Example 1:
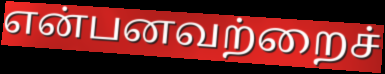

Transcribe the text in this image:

என்பனவற்றைச்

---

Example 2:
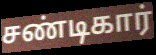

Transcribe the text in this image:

சண்டிகார்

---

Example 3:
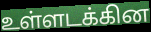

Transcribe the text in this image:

உள்ளடக்கின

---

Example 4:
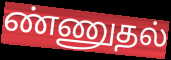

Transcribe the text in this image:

ண்ணுதல்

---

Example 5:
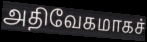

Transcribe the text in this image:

அதிவேகமாகச்